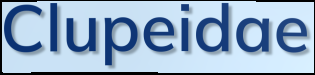
Clupeidae